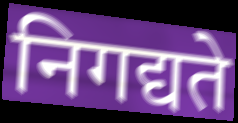
निगद्यते